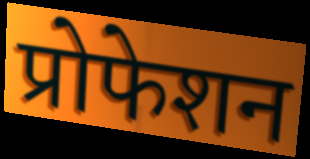
प्रोफेशन